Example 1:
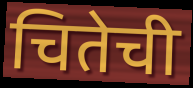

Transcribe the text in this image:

चितेची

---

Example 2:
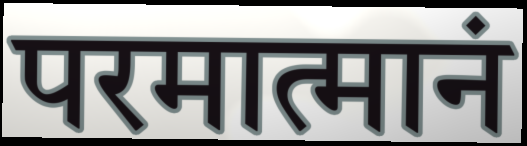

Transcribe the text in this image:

परमात्मानं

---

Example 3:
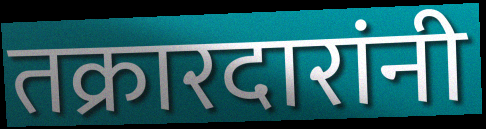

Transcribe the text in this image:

तक्रारदारांनी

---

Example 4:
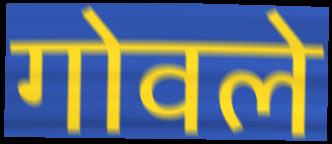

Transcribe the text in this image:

गोवले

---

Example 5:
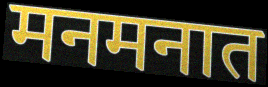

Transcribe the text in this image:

मनमनात